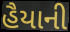
હૈયાની